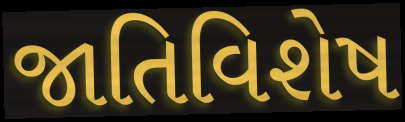
જાતિવિશેષ